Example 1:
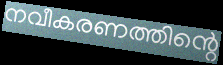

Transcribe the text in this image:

നവീകരണത്തിന്റെ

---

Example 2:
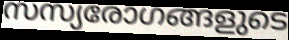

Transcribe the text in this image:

സസ്യരോഗങ്ങളുടെ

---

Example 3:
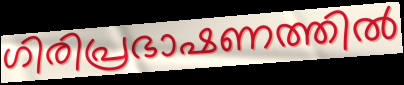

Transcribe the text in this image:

ഗിരിപ്രഭാഷണത്തിൽ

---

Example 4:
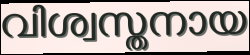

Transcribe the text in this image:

വിശ്വസ്തനായ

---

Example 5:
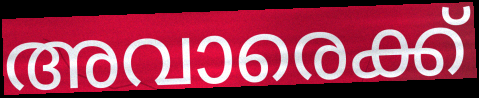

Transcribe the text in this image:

അവാരെക്ക്